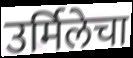
उर्मिलेचा